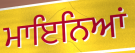
ਮਾਇਨਿਆਂ